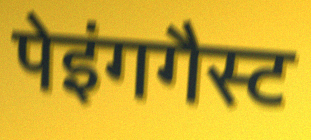
पेइंगगैस्ट